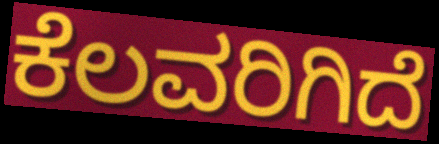
ಕೆಲವರಿಗಿದೆ